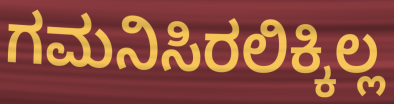
ಗಮನಿಸಿರಲಿಕ್ಕಿಲ್ಲ